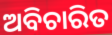
ଅବିଚାରିତ